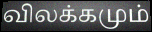
விலக்கமும்